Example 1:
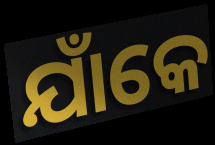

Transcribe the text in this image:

ଯାଁକେ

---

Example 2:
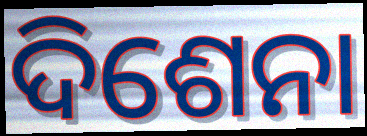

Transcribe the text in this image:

ଦିଶେନା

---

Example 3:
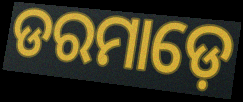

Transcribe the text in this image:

ଡରମାଡ଼େ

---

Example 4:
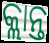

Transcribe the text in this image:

କ୍ଲାନ୍ତ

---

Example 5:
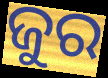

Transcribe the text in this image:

ଜୁର